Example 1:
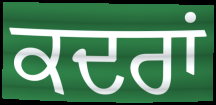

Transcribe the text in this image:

ਕਦਰਾਂ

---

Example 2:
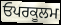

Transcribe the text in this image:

ਓਪਰਕੂਲਮ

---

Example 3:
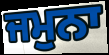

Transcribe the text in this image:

ਜਮੁਨਾ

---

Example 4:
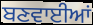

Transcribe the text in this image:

ਬਣਵਾਈਆਂ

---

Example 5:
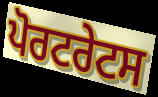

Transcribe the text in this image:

ਪੋਰਟਰੇਟਸ